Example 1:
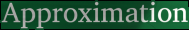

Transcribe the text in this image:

Approximation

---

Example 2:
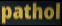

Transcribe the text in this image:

pathol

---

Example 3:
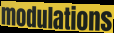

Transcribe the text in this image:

modulations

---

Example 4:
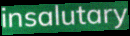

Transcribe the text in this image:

insalutary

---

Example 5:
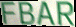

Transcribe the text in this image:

FBAR